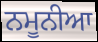
ਨਮੂਨੀਆ